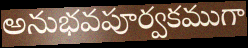
అనుభవపూర్వకముగా